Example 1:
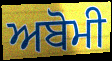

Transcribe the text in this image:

ਅਬੋਮੀ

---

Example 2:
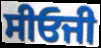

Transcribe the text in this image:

ਸੀਓਜੀ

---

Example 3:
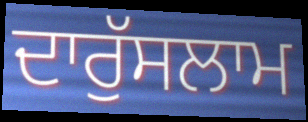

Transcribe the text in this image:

ਦਾਰੁੱਸਲਾਮ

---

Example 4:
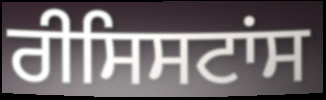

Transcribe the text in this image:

ਰੀਸਿਸਟਾਂਸ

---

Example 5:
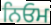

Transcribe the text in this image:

ਨਿਓਮ